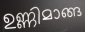
ഉണ്ണിമാങ്ങ